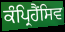
ਕੰਪ੍ਰਿਹੈਂਸਿਵ